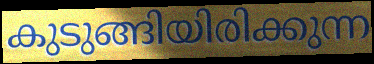
കുടുങ്ങിയിരിക്കുന്ന